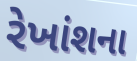
રેખાંશના